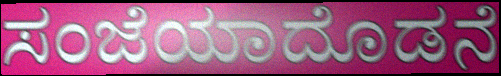
ಸಂಜೆಯಾದೊಡನೆ